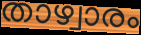
താഴ്വാരം